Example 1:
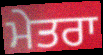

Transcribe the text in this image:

ਮੇਤਰਾ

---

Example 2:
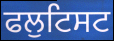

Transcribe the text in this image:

ਫਲੁਟਿਸਟ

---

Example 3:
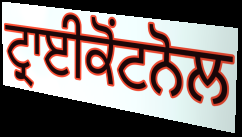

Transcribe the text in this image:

ਟ੍ਰਾਈਕੋਂਟਨੋਲ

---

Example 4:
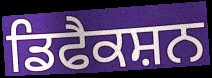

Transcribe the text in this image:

ਡਿਫੈਕਸ਼ਨ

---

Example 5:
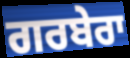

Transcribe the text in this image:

ਗਰਬੇਰਾ